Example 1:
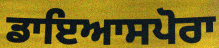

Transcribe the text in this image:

ਡਾਇਆਸਪੋਰਾ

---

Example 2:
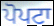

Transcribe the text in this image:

ਪੋਪਟਾ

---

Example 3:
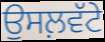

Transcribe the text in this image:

ਉਸਲ਼ਵੱਟੇ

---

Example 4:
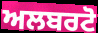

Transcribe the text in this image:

ਅਲਬਰਟੋ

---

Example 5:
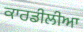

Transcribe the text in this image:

ਕਾਰਡੀਲੀਆ